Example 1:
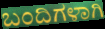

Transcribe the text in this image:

ಬಂದಿಗಳಾಗಿ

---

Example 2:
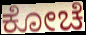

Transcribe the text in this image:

ಕೋಚೆ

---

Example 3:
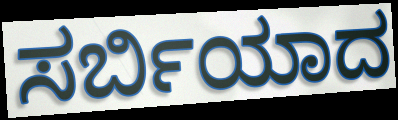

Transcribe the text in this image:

ಸರ್ಬಿಯಾದ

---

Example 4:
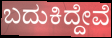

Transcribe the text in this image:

ಬದುಕಿದ್ದೇವೆ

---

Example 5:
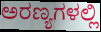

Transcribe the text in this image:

ಅರಣ್ಯಗಳಲ್ಲಿ